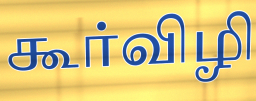
கூர்விழி